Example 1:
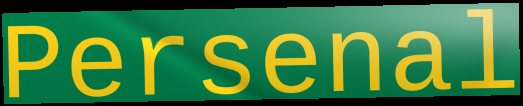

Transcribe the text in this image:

Persenal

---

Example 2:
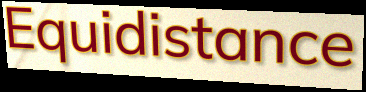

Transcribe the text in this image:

Equidistance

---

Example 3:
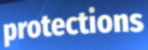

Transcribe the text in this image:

protections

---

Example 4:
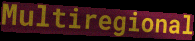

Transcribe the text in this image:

Multiregional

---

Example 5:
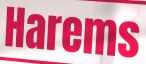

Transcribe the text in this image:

Harems